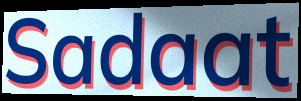
Sadaat